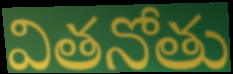
వితనోతు